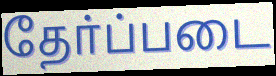
தேர்ப்படை